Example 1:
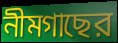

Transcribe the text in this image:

নীমগাছের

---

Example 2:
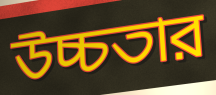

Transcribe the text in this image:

উচ্চতার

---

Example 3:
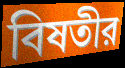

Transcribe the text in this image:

বিষতীর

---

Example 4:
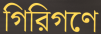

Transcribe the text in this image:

গিরিগণে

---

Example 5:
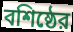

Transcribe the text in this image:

বশিষ্ঠের